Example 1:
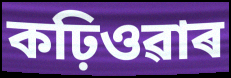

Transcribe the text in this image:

কঢ়িওৱাৰ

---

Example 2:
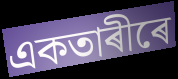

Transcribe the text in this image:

একতাৰীৰে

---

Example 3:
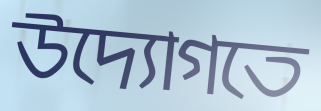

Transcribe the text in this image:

উদ্যোগতে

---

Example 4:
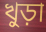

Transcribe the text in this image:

খুড়া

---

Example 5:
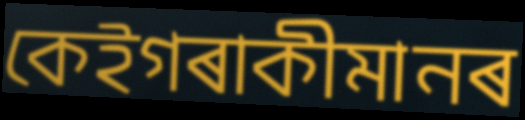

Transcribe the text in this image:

কেইগৰাকীমানৰ